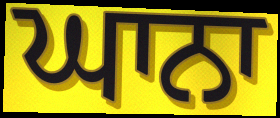
ਘਾਨਾ